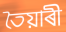
তৈয়াৰী